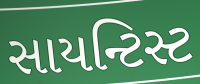
સાયન્ટિસ્ટ